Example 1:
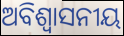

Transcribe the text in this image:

ଅବିଶ୍ୱାସନୀୟ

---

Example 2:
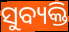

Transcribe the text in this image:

ସୁବ୍ୟକ୍ତି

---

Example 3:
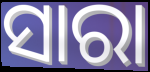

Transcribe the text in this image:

ସାରା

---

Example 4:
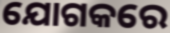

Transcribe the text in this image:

ଯୋଗକରେ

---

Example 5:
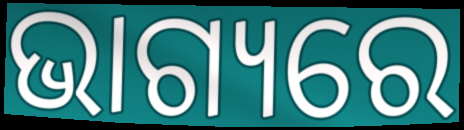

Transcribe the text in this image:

ଭାଗ୍ୟରେ